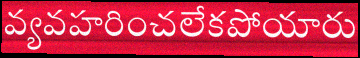
వ్యవహరించలేకపోయారు